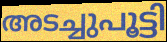
അടച്ചുപൂട്ടി